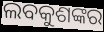
ଲବକୁଶଙ୍କର